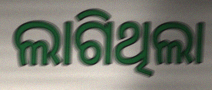
ଲାଗିଥିଲା